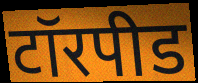
टॉरपीड